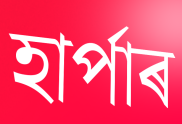
হাৰ্পাৰ